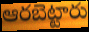
ఆరబెట్టారు